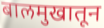
बालमुखातून